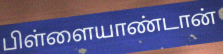
பிள்ளையாண்டான்